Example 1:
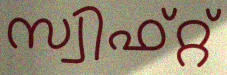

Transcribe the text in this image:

സ്വിഫ്റ്റ്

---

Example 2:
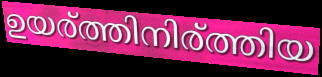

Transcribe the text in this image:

ഉയര്ത്തിനിര്ത്തിയ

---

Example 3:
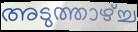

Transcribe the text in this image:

അടുത്താഴ്ച്ച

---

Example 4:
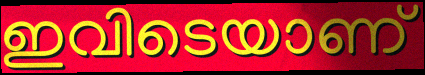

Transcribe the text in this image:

ഇവിടെയാണ്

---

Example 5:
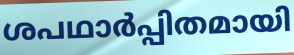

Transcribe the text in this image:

ശപഥാർപ്പിതമായി